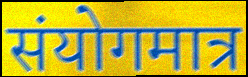
संयोगमात्र